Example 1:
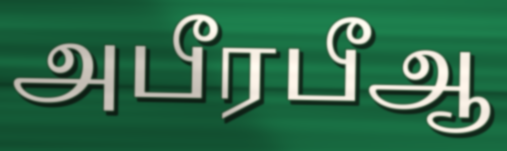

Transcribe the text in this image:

அபீரபீஆ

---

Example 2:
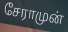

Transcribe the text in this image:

சேராமுன்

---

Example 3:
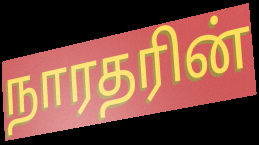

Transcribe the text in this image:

நாரதரின்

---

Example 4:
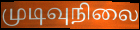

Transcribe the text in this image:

முடிவுநிலை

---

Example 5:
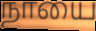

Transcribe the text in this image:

நாயை